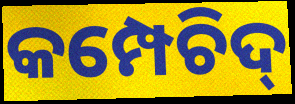
କମ୍ପେଚିଦ୍